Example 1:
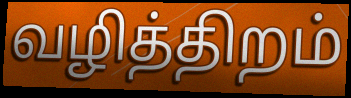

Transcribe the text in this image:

வழித்திறம்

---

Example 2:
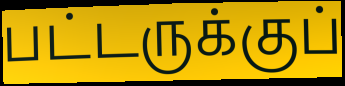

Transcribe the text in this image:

பட்டருக்குப்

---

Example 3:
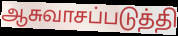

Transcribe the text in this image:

ஆசுவாசப்படுத்தி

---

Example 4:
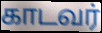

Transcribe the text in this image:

காடவர்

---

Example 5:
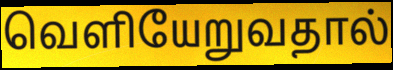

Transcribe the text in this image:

வெளியேறுவதால்